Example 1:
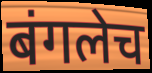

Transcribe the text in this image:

बंगलेच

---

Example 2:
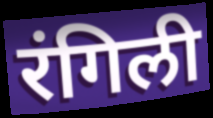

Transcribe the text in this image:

रंगिली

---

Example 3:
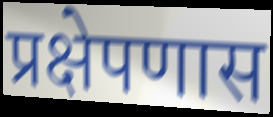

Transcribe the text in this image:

प्रक्षेपणास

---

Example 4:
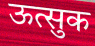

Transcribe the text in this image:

ऊत्सुक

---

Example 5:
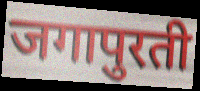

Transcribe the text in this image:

जगापुरती